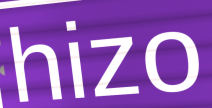
hizo